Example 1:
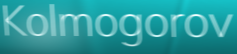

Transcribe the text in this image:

Kolmogorov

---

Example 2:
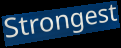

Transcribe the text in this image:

Strongest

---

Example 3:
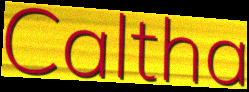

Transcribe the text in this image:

Caltha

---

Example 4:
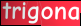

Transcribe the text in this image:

trigona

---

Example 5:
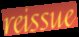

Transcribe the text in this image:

reissue